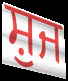
ਸ਼ੁਜ